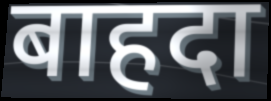
बाहदा